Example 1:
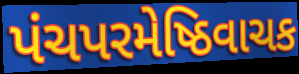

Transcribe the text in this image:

પંચપરમેષ્ઠિવાચક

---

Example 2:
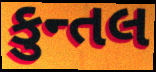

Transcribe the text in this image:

કુન્તલ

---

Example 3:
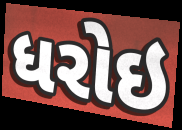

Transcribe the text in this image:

ધરોઇ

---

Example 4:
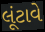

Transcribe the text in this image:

લૂંટાવે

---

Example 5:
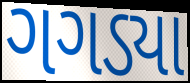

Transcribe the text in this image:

ગગડ્યા